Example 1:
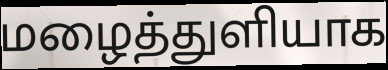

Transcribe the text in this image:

மழைத்துளியாக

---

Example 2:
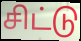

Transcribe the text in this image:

சிட்டு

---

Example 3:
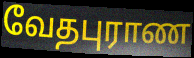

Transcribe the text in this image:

வேதபுராண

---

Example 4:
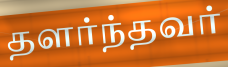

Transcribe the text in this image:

தளர்ந்தவர்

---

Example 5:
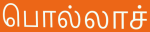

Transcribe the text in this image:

பொல்லாச்